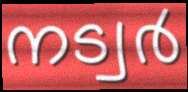
നട്വർ